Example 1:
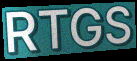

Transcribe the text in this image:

RTGS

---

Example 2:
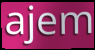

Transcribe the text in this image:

ajem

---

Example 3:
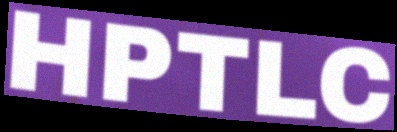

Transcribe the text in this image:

HPTLC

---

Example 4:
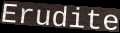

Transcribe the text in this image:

Erudite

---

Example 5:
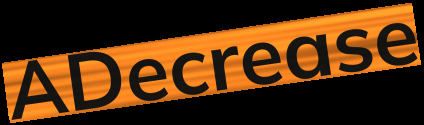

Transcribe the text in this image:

ADecrease